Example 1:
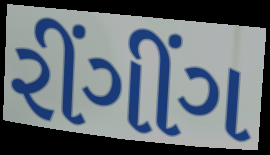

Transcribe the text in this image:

રીંગીંગ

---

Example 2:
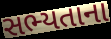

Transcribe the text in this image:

સભ્યતાના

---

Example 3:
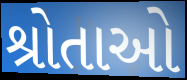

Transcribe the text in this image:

શ્રોતાઓ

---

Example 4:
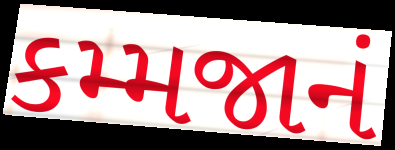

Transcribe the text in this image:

કમ્મજાનં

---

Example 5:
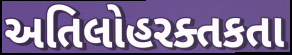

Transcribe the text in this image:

અતિલોહરક્તકતા